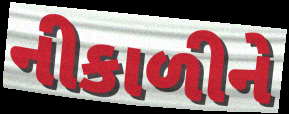
નીકાળીને